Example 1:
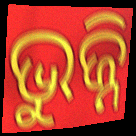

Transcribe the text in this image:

ଭୁଜ୍ନି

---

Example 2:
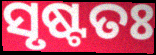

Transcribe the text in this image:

ସୃଷ୍ଟତଃ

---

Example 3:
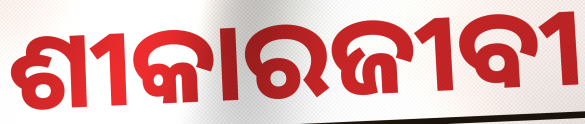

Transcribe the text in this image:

ଶୀକାରଜୀବୀ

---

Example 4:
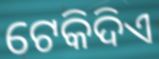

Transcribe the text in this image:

ଟେକିଦିଏ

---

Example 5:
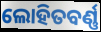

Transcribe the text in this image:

ଲୋହିତବର୍ଣ୍ଣ